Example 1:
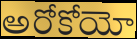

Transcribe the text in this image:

అరోకోయో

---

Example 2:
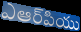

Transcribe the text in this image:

ఎఆర్‌పియు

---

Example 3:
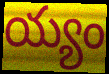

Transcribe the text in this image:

య్యం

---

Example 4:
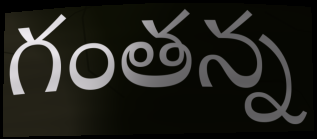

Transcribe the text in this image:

గంతన్న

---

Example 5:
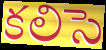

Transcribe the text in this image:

కలిసె